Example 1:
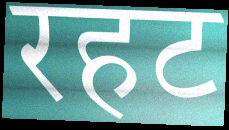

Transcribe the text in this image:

रहट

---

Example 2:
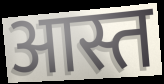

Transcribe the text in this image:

आस्त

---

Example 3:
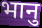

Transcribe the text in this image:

भानु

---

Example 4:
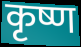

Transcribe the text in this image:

कृष्ण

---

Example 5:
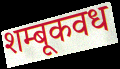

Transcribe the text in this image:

शम्बूकवध